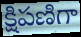
క్షిపణిగా